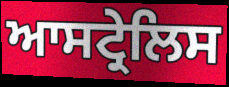
ਆਸਟ੍ਰੇਲਿਸ